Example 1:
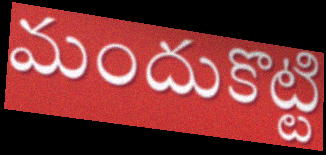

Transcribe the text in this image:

మందుకొట్టి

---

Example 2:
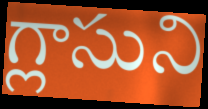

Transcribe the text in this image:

గ్లాసుని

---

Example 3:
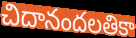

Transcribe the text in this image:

చిదానందలతికా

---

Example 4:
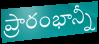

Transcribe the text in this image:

ప్రారంభాన్నీ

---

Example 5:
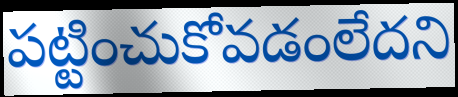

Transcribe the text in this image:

పట్టించుకోవడంలేదని